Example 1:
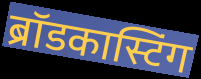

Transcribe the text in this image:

ब्रॉडकास्टिंग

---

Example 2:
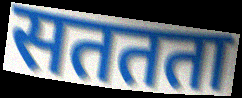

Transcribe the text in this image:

सततता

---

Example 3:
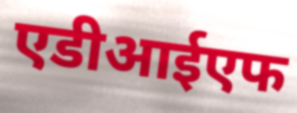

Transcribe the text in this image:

एडीआईएफ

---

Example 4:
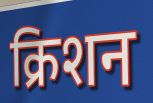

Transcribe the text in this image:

क्रिशन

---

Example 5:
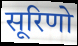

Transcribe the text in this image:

सूरिणो